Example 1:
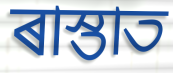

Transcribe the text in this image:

ৰাস্তাত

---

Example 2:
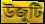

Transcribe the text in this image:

উজুটি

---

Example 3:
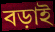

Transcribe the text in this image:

বড়াই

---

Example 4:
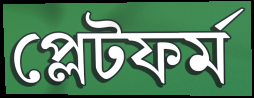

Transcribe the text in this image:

প্লেটফৰ্ম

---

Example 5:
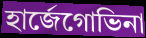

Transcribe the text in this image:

হাৰ্জেগোভিনা